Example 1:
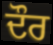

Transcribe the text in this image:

ਦੌਰ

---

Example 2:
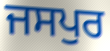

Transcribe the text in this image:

ਜਸਪੁਰ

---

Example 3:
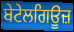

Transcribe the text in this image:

ਬੇਟੇਲਗਿਊਜ਼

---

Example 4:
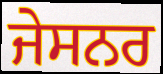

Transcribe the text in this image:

ਜੇਸਨਰ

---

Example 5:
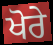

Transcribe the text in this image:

ਖੋਰੇ